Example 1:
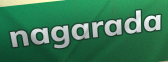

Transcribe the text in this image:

nagarada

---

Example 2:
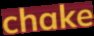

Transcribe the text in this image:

chake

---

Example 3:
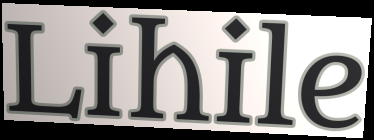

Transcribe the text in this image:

Lihile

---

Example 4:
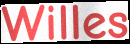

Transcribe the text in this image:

Willes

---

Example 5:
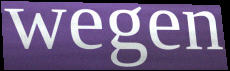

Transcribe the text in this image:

wegen